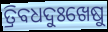
ତ୍ରିବଧଦୁଃଖେଷୁ